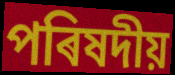
পৰিষদীয়